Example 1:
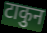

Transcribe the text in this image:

टाकुन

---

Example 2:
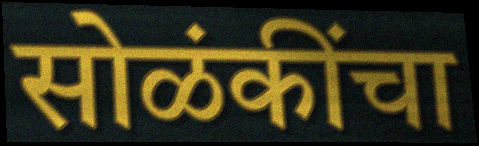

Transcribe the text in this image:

सोळंकींचा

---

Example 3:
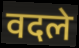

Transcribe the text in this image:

वदले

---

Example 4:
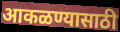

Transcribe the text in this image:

आकळण्यासाठी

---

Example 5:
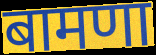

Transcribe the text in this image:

बामणा